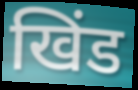
खिंड